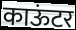
काऊंटर